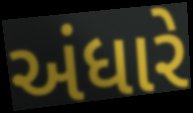
અંધારે